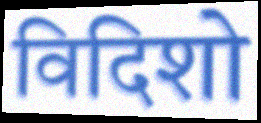
विदिशो